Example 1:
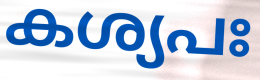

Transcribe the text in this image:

കശ്യപഃ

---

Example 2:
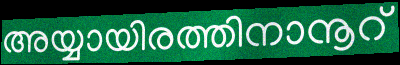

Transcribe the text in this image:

അയ്യായിരത്തിനാനൂറ്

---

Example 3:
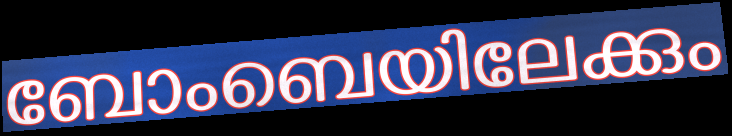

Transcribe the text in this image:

ബോംബെയിലേക്കും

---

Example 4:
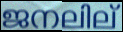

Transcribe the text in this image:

ജനലില്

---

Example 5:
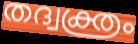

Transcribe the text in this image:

തദ്വക്ത്രം